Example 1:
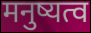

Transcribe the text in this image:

मनुष्यत्‍व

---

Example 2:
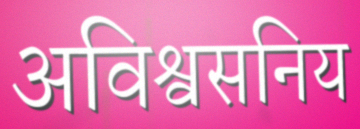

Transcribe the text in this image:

अविश्वसनिय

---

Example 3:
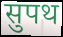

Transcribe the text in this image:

सुपथ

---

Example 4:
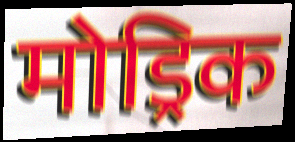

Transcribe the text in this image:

मोड्रिक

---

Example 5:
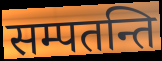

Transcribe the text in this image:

सम्पतन्ति